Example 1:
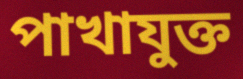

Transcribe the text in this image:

পাখাযুক্ত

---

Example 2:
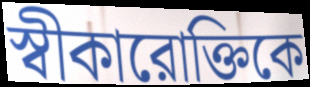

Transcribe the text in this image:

স্বীকারোক্তিকে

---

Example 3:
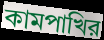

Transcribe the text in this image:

কামপাখির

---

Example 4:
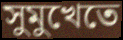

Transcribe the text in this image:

সুমুখেতে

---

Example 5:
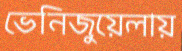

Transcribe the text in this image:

ভেনিজুয়েলায়